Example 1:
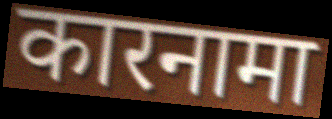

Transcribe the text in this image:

कारनामा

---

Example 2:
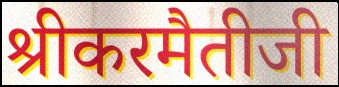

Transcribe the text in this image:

श्रीकरमैतीजी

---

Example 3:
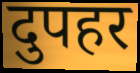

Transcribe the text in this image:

दुपहर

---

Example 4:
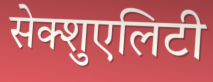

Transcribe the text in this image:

सेक्शुएलिटी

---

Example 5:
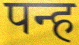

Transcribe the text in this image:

पन्ह